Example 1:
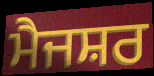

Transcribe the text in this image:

ਮੈਜਸ਼ਰ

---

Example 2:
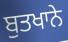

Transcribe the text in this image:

ਬੁਤਖਾਨੇ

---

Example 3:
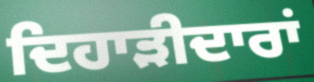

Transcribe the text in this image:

ਦਿਹਾੜੀਦਾਰਾਂ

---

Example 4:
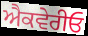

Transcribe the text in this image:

ਐਕਵੇਰੀਓ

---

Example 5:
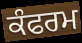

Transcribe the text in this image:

ਕੰਫਰਮ